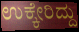
ಉಕ್ಕೇರಿದ್ದು